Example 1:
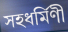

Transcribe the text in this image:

সহধৰ্মিণী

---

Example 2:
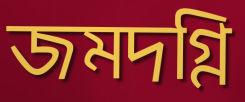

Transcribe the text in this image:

জমদগ্নি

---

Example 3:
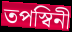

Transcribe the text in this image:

তপস্বিনী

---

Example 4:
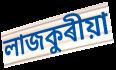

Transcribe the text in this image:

লাজকুৰীয়া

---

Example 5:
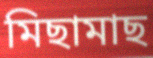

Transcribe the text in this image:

মিছামাছ